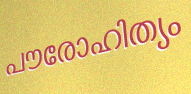
പൗരോഹിത്യം